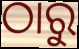
ଠାରୁ